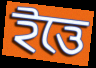
ইত্তে